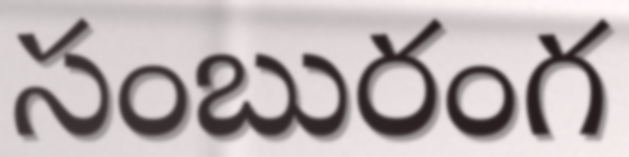
సంబురంగ